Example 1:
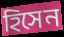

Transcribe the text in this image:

হিসেন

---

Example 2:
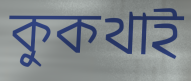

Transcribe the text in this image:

কুকথাই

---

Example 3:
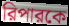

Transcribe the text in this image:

রিপারকে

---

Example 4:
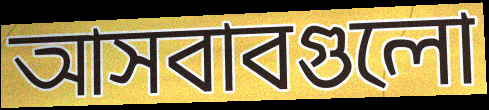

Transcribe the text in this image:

আসবাবগুলো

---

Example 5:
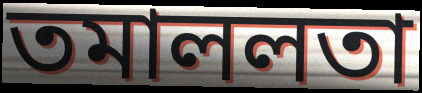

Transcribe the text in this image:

তমাললতা